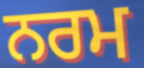
ਨਰਮ